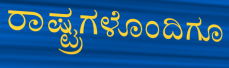
ರಾಷ್ಟ್ರಗಳೊಂದಿಗೂ